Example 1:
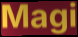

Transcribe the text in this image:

Magi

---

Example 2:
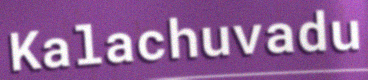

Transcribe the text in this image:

Kalachuvadu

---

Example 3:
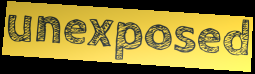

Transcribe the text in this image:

unexposed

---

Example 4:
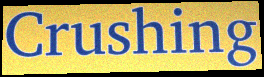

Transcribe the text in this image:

Crushing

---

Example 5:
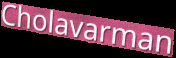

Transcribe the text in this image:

Cholavarman